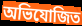
অভিযোজিত